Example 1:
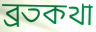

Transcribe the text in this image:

ব্রতকথা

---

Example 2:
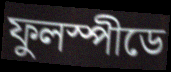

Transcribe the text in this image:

ফুলস্পীডে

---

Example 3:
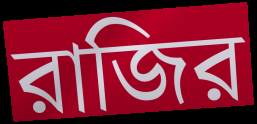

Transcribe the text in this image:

রাজির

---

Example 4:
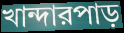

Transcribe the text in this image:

খান্দারপাড়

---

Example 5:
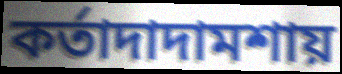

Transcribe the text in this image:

কর্তাদাদামশায়